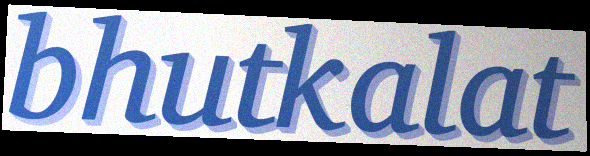
bhutkalat